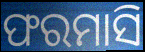
ଫରମାସି